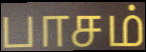
பாசம்